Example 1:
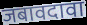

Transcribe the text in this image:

जबावदावा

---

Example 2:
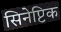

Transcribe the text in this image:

सिनेप्टिक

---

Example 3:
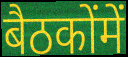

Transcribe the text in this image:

बैठकोंमें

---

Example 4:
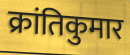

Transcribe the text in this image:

क्रांतिकुमार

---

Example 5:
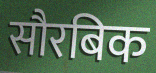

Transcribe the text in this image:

सौरबिक